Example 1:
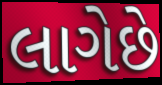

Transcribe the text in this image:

લાગેછે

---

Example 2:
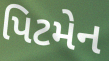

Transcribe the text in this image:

પિટમેન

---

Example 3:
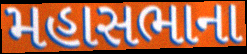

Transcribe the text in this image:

મહાસભાના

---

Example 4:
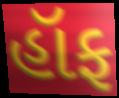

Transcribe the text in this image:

હૉફ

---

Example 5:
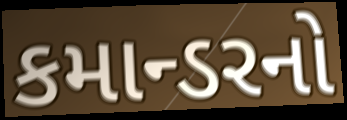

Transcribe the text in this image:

કમાન્ડરનો